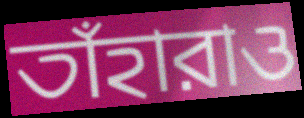
তাঁহারাও